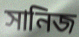
সানিজ